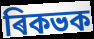
ৰিকভক